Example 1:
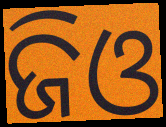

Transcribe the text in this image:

ଜିଓ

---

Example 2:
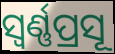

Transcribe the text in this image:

ସ୍ଵର୍ଣ୍ଣପ୍ରସୂ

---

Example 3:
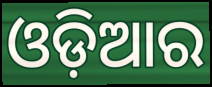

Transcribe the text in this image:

ଓଡ଼ିଆର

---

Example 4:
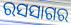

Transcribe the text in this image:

ରସସାଗର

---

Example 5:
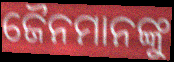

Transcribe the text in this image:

ଜୈନମାନଙ୍କୁ